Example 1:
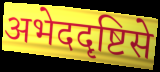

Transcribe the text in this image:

अभेददृष्टिसे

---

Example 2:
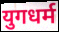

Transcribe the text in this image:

युगधर्म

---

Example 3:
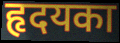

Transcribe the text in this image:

हृदयका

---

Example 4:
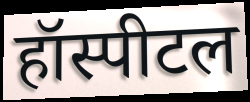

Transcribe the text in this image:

हॉस्पीटल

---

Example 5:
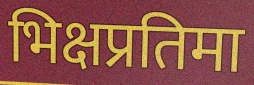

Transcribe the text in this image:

भिक्षप्रतिमा